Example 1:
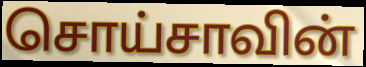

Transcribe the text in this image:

சொய்சாவின்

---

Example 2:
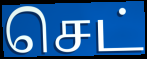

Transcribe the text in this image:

செட்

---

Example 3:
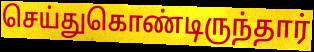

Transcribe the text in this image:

செய்துகொண்டிருந்தார்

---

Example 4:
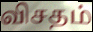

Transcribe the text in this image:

விசதம்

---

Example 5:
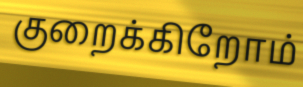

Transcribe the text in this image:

குறைக்கிறோம்